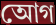
আেগ